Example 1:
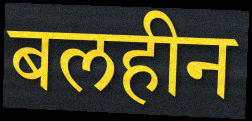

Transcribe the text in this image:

बलहीन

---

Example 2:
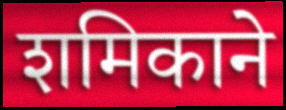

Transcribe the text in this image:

शमिकाने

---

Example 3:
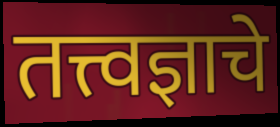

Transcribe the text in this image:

तत्त्वज्ञाचे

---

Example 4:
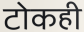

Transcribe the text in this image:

टोकही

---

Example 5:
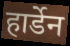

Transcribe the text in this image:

हार्डेन